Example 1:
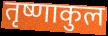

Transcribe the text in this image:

तृष्णाकुल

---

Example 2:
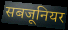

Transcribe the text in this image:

सबजूनियर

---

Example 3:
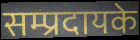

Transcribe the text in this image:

सम्प्रदायके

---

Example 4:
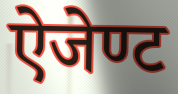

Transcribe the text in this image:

ऐजेण्ट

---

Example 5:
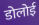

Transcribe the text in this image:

डोलोई